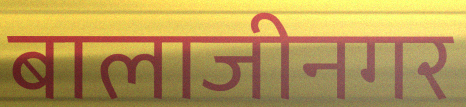
बालाजीनगर